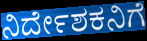
ನಿರ್ದೇಶಕನಿಗೆ